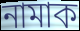
নামাক